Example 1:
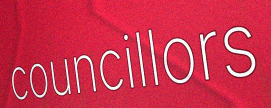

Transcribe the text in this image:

councillors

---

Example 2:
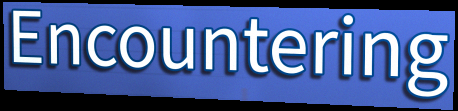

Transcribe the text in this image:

Encountering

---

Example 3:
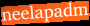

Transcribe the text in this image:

neelapadm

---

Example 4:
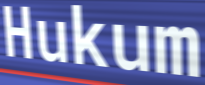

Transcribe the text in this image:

Hukum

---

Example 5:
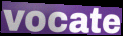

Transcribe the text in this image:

vocate